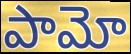
పామో